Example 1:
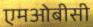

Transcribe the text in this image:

एमओबीसी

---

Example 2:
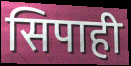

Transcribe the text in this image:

सिपाही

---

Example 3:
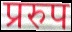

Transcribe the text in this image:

प्ररुप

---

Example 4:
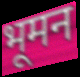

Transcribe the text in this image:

भूमन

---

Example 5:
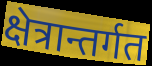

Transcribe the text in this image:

क्षेत्रान्‍तर्गत